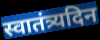
स्वातंत्र्यदिन